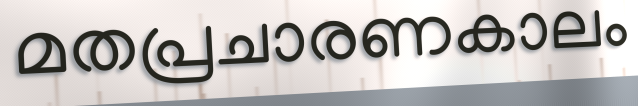
മതപ്രചാരണകാലം